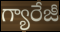
గ్యారేజీ